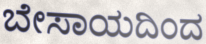
ಬೇಸಾಯದಿಂದ